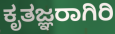
ಕೃತಜ್ಞರಾಗಿರಿ